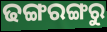
ଢଙ୍ଗରଙ୍ଗରୁ